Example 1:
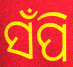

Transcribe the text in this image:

ସଁପି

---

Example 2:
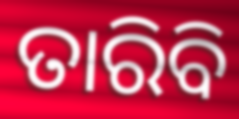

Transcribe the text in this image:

ତାରିବି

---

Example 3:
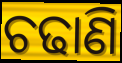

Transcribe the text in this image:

ଚଢାଣି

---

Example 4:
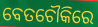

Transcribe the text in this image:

ବେତଚୌକିରେ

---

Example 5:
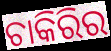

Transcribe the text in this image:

ଚାକିରିର